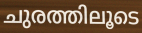
ചുരത്തിലൂടെ